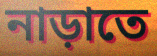
নাড়াতে